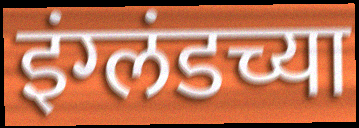
इंग्‍लंडच्या